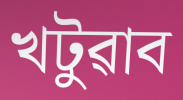
খটুৱাব